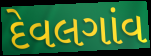
દેવલગાંવ